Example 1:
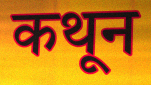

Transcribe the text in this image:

कथून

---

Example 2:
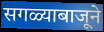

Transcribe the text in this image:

सगळ्याबाजूने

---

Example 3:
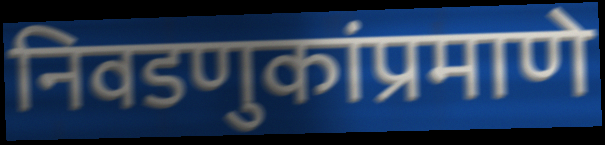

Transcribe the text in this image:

निवडणुकांप्रमाणे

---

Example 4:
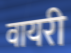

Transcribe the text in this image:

वायरी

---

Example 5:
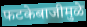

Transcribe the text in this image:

फटकेबाजीमुळे